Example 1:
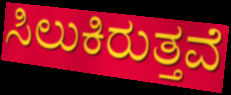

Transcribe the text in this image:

ಸಿಲುಕಿರುತ್ತವೆ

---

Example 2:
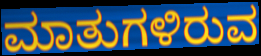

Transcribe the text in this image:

ಮಾತುಗಳಿರುವ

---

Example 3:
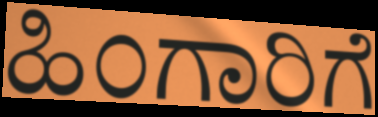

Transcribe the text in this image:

ಹಿಂಗಾರಿಗೆ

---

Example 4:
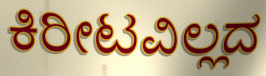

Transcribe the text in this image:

ಕಿರೀಟವಿಲ್ಲದ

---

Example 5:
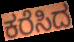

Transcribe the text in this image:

ಕರೆಸಿದ